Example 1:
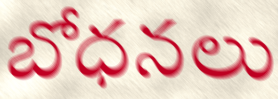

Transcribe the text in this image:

బోధనలు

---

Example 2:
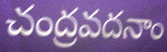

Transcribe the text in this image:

చంద్రవదనాం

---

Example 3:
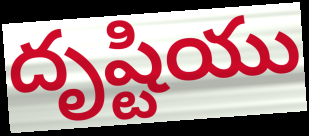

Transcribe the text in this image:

దృష్టియు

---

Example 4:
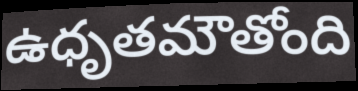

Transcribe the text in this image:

ఉధృతమౌతోంది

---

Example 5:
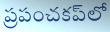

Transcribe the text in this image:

ప్రపంచకప్‌లో